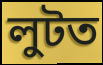
লুটত